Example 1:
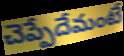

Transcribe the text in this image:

చెప్పేదేమంటే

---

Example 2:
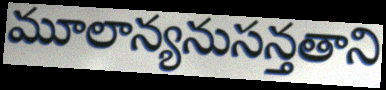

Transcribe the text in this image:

మూలాన్యనుసన్తతాని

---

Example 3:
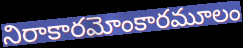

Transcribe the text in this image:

నిరాకారమోంకారమూలం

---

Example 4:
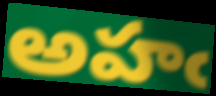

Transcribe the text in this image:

అహఁ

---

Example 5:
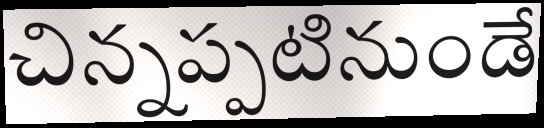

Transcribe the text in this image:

చిన్నప్పటినుండే